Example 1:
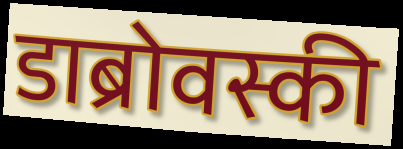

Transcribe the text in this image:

डाब्रोवस्की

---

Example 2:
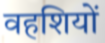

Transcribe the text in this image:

वहशियों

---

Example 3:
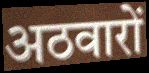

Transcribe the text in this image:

अठवारों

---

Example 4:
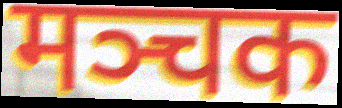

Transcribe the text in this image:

मञ्चक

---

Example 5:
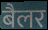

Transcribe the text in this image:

बैलर